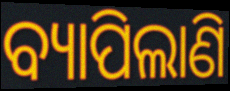
ବ୍ୟାପିଲାଣି